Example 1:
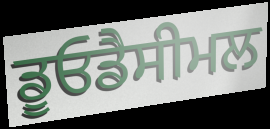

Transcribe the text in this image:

ਡੂਓਡੈਸੀਮਲ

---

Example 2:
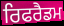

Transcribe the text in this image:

ਰਿਫਰੈਡਮ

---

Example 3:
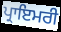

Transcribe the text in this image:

ਪ੍ਰਾਇਮਰੀ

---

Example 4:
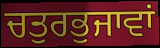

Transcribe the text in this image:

ਚਤੁਰਭੁਜਾਵਾਂ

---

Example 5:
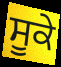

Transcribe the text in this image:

ਸੂਕੇ